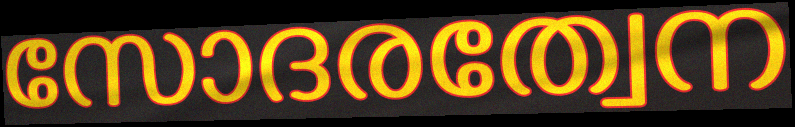
സോദരത്വേന